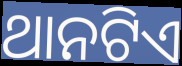
ଥାନଟିଏ